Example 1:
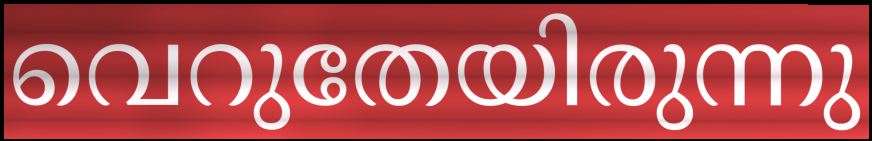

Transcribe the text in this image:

വെറുതേയിരുന്നു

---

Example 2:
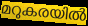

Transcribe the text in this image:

മറുകരയിൽ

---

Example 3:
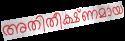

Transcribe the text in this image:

അതിതീക്ഷ്ണമായ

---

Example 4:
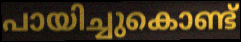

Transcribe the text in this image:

പായിച്ചുകൊണ്ട്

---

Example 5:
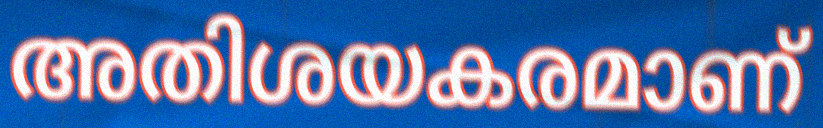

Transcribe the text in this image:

അതിശയകരമാണ്